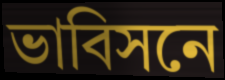
ভাবিসনে